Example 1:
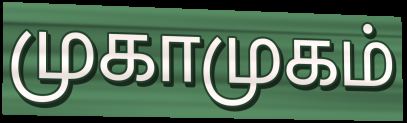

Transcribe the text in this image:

முகாமுகம்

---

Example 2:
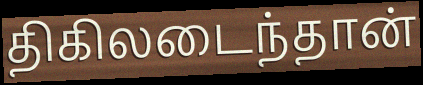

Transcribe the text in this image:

திகிலடைந்தான்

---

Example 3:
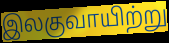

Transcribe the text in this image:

இலகுவாயிற்று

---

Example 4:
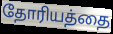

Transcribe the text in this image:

தோரியத்தை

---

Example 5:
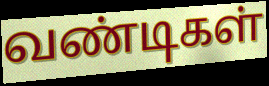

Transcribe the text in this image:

வண்டிகள்